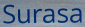
Surasa